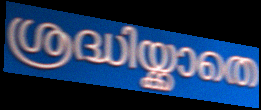
ശ്രദ്ധിയ്ക്കാതെ